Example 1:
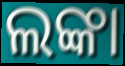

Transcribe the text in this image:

ଲଙ୍କା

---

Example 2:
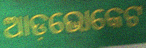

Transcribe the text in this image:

ଆଡ଼ଭୋକେଟ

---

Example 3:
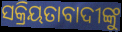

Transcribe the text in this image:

ସକ୍ରିୟତାବାଦୀଙ୍କୁ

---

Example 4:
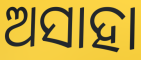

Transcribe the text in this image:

ଅସାହା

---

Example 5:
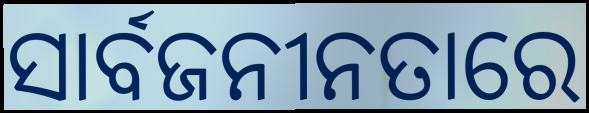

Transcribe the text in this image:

ସାର୍ବଜନୀନତାରେ